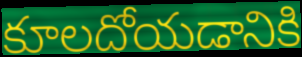
కూలదోయడానికి